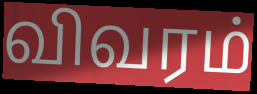
விவரம்